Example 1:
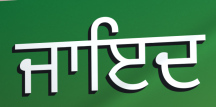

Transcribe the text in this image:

ਜਾਇਦ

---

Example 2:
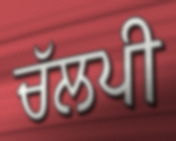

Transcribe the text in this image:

ਚੱਲਪੀ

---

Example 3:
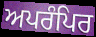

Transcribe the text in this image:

ਅਪਰੰਪਿਰ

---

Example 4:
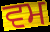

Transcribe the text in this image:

ਵਮ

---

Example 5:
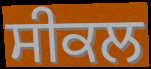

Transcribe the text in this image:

ਸੀਕਲ